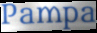
Pampa